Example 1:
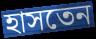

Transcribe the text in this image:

হাসতেন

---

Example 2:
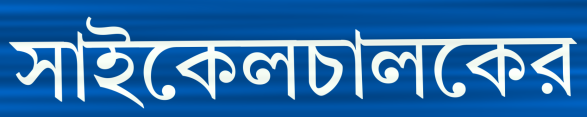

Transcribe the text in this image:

সাইকেলচালকের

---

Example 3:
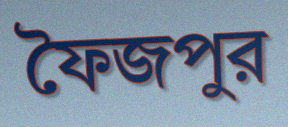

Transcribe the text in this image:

ফৈজপুর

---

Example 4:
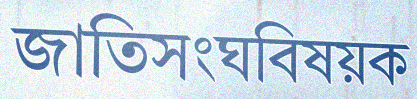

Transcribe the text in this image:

জাতিসংঘবিষয়ক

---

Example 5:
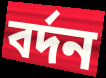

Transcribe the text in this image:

বর্দন